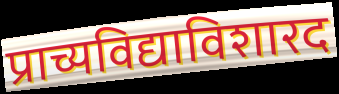
प्राच्यविद्याविशारद